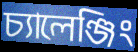
চ্যালেঞ্জিং